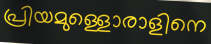
പ്രിയമുള്ളൊരാളിനെ